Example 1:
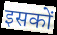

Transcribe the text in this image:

इसकों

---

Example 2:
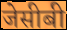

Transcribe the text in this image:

जेसीबी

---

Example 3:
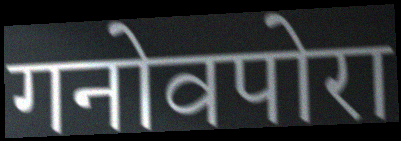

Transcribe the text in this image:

गनोवपोरा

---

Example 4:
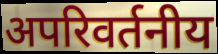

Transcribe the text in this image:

अपरिवर्तनीय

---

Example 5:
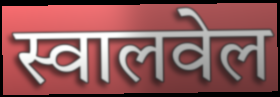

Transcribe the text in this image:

स्वालवेल